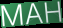
MAH